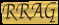
RRAG